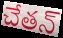
చేతన్